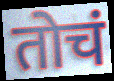
तोचं